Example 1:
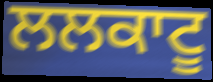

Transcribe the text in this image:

ਲਲਕਾਟੂ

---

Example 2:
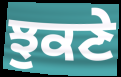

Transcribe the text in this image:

ਝੁਕਣੇ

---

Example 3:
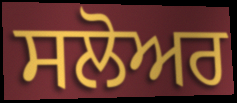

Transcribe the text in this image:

ਸਲੋਅਰ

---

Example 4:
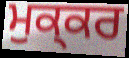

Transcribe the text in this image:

ਮੁਕ੍ਕਰ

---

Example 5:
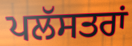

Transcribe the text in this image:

ਪਲੱਸਤਰਾਂ